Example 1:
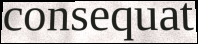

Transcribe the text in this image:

consequat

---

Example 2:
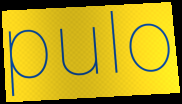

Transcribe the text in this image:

pulo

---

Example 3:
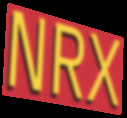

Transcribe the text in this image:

NRX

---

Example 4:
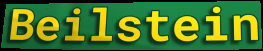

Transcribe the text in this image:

Beilstein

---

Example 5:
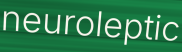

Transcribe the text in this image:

neuroleptic